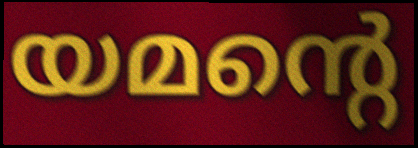
യമന്റെ